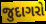
જુદાગરો